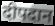
दीपदान